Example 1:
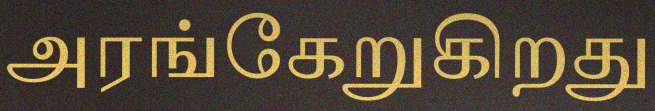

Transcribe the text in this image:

அரங்கேறுகிறது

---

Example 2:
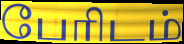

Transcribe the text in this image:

பேரிடம்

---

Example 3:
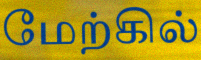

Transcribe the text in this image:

மேற்கில்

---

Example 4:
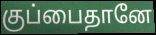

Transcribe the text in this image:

குப்பைதானே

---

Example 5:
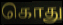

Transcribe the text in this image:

கொது